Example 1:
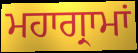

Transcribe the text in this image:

ਮਹਾਗ੍ਰਾਮਾਂ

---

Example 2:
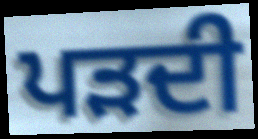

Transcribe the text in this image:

ਪੜਦੀ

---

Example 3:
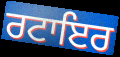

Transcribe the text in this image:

ਰਟਾਇਰ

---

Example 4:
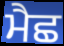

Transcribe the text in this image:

ਮੈਛ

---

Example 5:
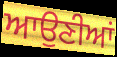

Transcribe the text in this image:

ਆਉਣੀਆਂ